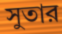
সুতার